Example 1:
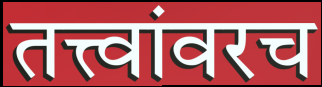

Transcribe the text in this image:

तत्त्वांवरच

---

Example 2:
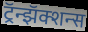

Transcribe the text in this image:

ट्रॅन्झॅक्शन्स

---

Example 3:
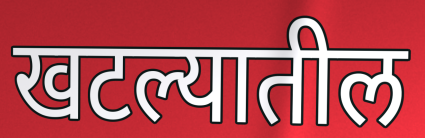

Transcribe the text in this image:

खटल्यातील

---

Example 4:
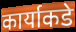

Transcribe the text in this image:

कार्याकडे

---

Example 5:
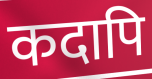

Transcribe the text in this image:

कदापि